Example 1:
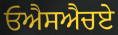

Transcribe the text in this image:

ਓਐਸਐਚਏ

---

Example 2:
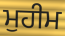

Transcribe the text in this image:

ਮੁਹੀਮ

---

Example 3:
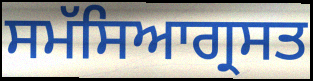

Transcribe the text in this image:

ਸਮੱਸਿਆਗ੍ਰਸਤ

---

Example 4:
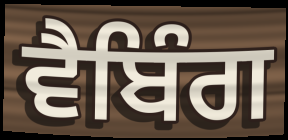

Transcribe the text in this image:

ਵੈਬਿੰਗ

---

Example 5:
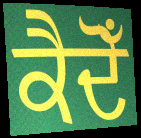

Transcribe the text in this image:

ਕੈਦੋਁ